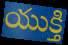
యుక్తి